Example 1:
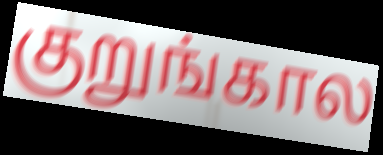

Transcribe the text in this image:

குறுங்கால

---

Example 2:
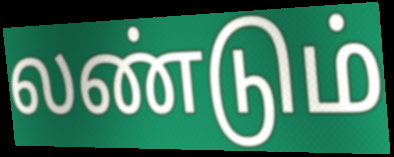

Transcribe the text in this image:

லண்டும்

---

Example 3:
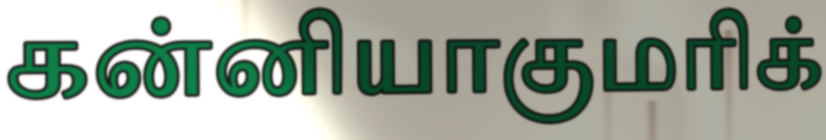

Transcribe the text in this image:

கன்னியாகுமரிக்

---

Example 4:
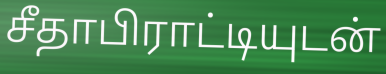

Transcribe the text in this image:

சீதாபிராட்டியுடன்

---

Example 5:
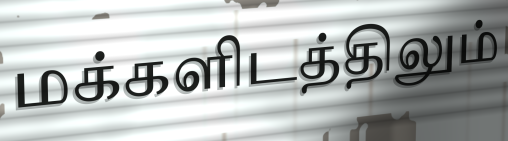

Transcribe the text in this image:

மக்களிடத்திலும்